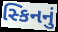
સ્કિનનું